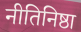
नीतिनिष्ठा